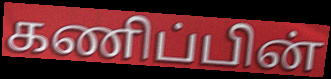
கணிப்பின்